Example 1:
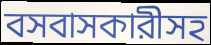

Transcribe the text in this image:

বসবাসকারীসহ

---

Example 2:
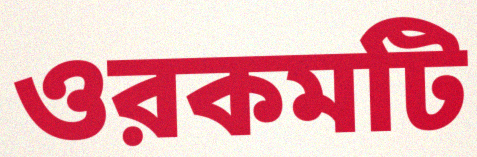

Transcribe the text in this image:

ওরকমটি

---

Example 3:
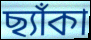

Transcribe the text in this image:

ছ্যাঁকা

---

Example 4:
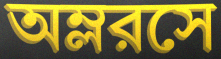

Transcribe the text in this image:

অম্লরসে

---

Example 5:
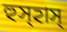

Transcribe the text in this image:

হুস্‌হাস্